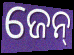
ଜେନ୍